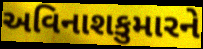
અવિનાશકુમારને